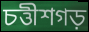
চত্তীশগড়